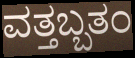
ವತ್ತಬ್ಬತಂ